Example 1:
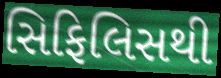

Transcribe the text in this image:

સિફિલિસથી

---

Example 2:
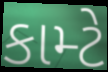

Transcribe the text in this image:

કામ્ટે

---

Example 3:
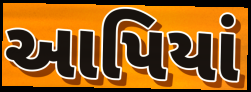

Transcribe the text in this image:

આપિયાં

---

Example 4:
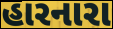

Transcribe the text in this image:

હારનારા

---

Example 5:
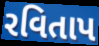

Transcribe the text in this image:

રવિતાપ